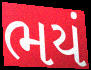
ભયં